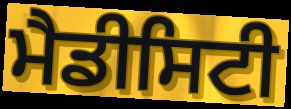
ਮੈਡੀਸਿਟੀ